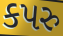
કપરુ